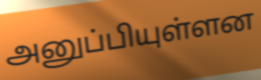
அனுப்பியுள்ளன